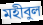
মহীবুল